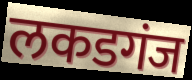
लकडगंज